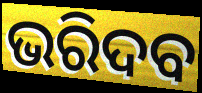
ଭରିଦବ